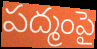
పద్మంపై